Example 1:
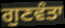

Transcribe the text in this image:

ਗੁਣਵੰਤਾ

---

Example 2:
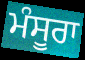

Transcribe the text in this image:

ਮੰਸੂਰਾ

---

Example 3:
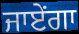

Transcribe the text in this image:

ਜਾਏਂਗਾ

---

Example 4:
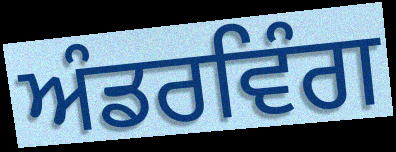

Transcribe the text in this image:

ਅੰਡਰਵਿੰਗ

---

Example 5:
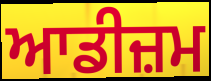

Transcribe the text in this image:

ਆਡੀਜ਼ਮ